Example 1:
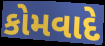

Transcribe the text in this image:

કોમવાદે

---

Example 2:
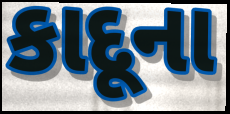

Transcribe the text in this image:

કાદૂના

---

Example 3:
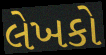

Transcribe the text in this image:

લેખકો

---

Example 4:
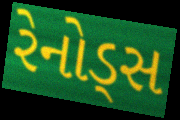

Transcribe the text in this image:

રેનોડ્સ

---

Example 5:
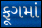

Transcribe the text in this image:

ફૂગમાં